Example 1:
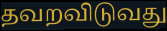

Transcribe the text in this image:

தவறவிடுவது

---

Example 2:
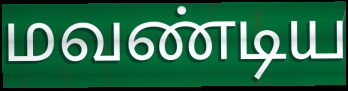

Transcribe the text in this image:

மவண்டிய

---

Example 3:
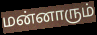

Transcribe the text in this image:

மன்னாரும்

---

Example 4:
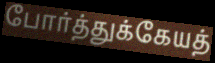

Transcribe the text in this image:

போர்த்துக்கேயத்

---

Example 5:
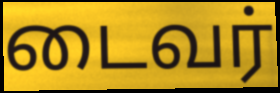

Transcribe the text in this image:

டைவர்